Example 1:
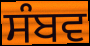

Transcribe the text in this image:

ਸੰਬਵ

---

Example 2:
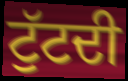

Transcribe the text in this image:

ਟੁੱਟਦੀ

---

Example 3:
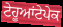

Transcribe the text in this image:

ਟੇਹੂਆਂਟੇਪੇਕ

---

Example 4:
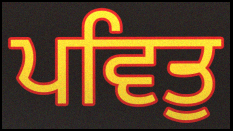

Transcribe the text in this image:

ਪਵਿਤੁ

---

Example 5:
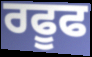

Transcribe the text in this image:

ਰਫੂਫ